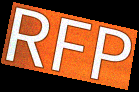
RFP